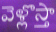
వెళ్లొస్తా